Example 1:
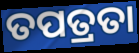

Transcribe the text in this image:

ତପତ୍ରତା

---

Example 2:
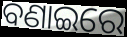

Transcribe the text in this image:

ବଣାଇରେ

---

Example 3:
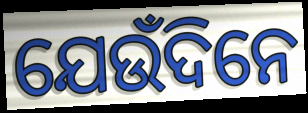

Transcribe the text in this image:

ଯେଉଁଦିନେ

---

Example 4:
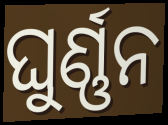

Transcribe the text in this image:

ଘୁର୍ଣ୍ଣନ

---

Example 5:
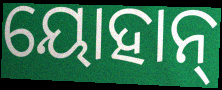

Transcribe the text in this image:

ୟୋହାନ୍